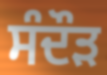
ਸੰਦੌੜ